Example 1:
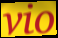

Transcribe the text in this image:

vio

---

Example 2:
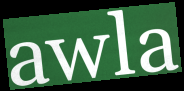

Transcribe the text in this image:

awla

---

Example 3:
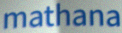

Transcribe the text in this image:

mathana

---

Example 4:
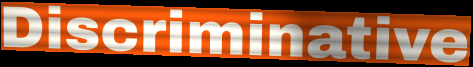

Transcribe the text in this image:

Discriminative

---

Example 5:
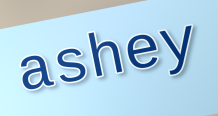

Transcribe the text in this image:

ashey